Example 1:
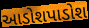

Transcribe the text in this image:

આડોશપાડોશ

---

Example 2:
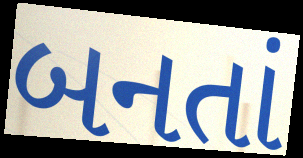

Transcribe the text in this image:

બનતાં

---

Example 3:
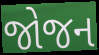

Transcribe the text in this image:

જોજન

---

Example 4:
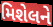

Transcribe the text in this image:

મિશેલને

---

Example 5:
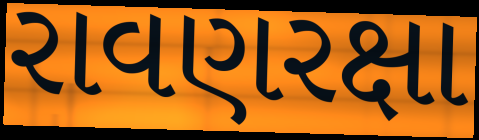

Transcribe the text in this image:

રાવણરક્ષા